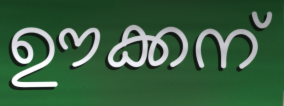
ഊക്കന്